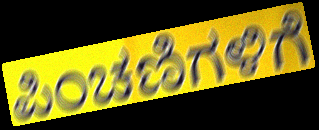
ಪಿಂಚಣಿಗಳಿಗೆ